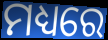
ମଧ୍ଯରେ